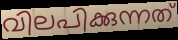
വിലപിക്കുന്നത്